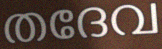
തദേവ